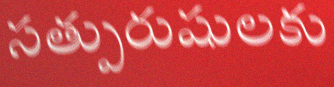
సత్పురుషులకు